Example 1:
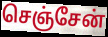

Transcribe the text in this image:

செஞ்சேன்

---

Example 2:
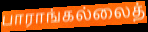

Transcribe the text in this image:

பாராங்கல்லைத்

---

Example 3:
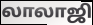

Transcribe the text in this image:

லாலாஜி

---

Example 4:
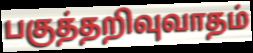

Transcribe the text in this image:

பகுத்தறிவுவாதம்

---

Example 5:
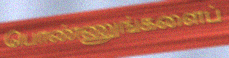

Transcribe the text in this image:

பொண்ணுங்களைப்